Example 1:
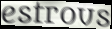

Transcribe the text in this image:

estrous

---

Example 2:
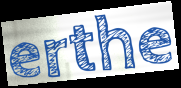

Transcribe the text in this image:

erthe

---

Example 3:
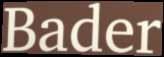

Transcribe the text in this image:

Bader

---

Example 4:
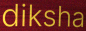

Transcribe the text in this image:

diksha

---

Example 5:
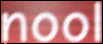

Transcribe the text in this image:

nool